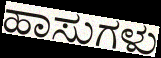
ಹಾಸುಗಳು